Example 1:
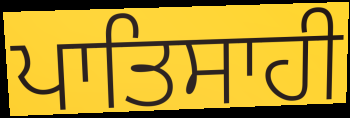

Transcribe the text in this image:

ਪਾਤਿਸਾਹੀ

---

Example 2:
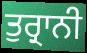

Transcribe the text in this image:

ਤੁਰ੍ਰਾਨੀ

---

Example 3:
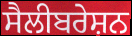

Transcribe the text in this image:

ਸੈਲੀਬਰੇਸ਼ਨ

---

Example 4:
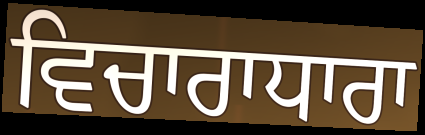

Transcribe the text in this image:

ਵਿਚਾਰਾਧਾਰਾ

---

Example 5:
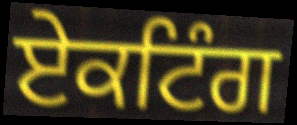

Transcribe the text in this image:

ਏਕਟਿੰਗ